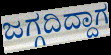
ಜಗ್ಗದಿದ್ದಾಗ